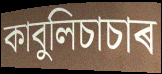
কাবুলিচাচাৰ